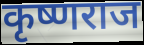
कृष्णराज